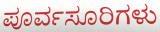
ಪೂರ್ವಸೂರಿಗಳು